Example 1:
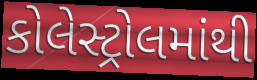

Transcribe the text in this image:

કોલેસ્ટ્રોલમાંથી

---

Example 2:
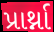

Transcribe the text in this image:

પ્રાર્થ્ના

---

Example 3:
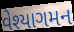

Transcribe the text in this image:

વેશ્યાગમન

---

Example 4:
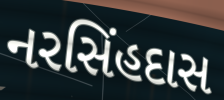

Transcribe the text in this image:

નરસિંહદાસ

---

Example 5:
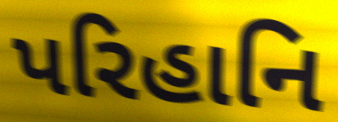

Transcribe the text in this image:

પરિહાનિ